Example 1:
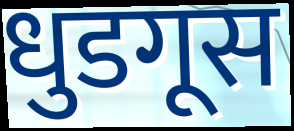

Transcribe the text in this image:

धुडगूस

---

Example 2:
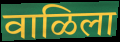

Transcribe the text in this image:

वाळिला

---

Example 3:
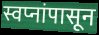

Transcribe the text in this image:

स्वप्नांपासून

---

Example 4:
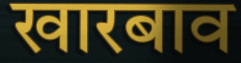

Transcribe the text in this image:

खारबाव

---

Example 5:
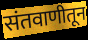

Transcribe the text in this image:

संतवाणीतून